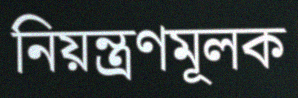
নিয়ন্ত্রণমূলক